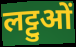
लट्टुओं